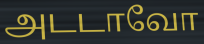
அடடாவோ